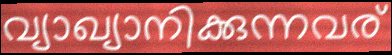
വ്യാഖ്യാനിക്കുന്നവര്